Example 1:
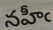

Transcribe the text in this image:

నహీఁ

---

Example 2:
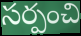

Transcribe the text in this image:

సర్పంచి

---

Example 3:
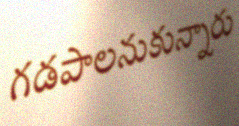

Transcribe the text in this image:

గడపాలనుకున్నారు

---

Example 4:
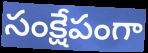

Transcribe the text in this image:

సంక్షేపంగా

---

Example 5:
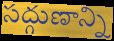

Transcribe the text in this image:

సద్గుణాన్ని